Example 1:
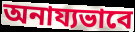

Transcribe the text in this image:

অনায্যভাবে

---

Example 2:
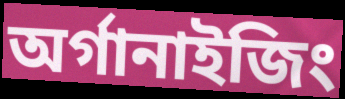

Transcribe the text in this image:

অর্গানাইজিং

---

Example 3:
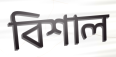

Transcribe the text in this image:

বিশাল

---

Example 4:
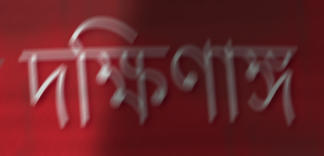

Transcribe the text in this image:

দক্ষিণাঙ্গ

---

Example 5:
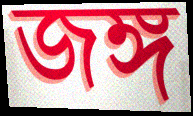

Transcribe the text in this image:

জঙ্গ